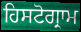
ਹਿਸਟੋਗ੍ਰਾਮ